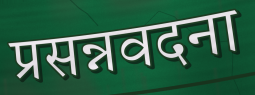
प्रसन्नवदना